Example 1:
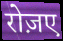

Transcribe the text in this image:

रोज़ए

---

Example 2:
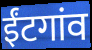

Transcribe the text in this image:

ईंटगांव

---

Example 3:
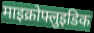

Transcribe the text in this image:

माइक्रोफ्लुइडिक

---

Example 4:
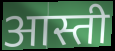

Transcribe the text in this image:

आस्ती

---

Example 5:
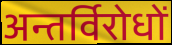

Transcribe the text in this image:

अन्तर्विरोधों